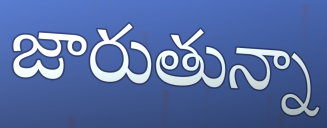
జారుతున్నా